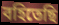
বহিতেছি